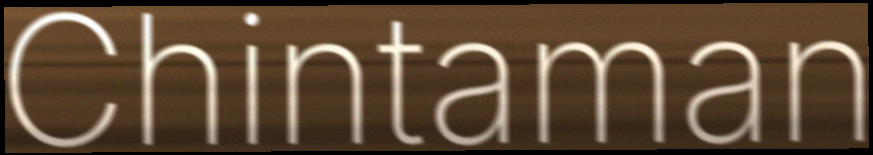
Chintaman